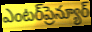
ఎంటర్‌ప్రెన్యూర్